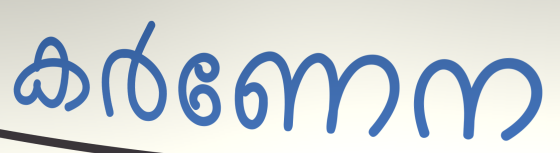
കർണേന